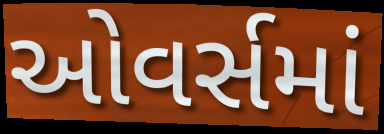
ઓવર્સમાં